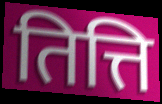
तित्ति